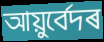
আয়ুৰ্বেদৰ